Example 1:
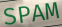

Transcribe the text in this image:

SPAM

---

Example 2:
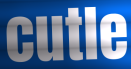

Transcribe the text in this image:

cutle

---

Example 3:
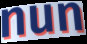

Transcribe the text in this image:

nun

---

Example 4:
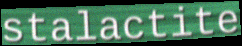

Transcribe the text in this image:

stalactite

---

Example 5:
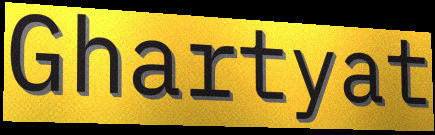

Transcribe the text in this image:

Ghartyat